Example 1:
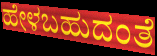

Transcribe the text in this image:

ಹೇಳಬಹುದಂತೆ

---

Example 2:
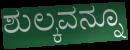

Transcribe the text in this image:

ಶುಲ್ಕವನ್ನೂ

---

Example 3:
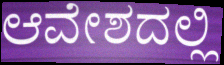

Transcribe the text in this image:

ಆವೇಶದಲ್ಲಿ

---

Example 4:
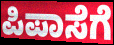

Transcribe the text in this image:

ಪಿಪಾಸೆಗೆ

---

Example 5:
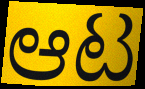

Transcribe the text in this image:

ಆಟ